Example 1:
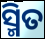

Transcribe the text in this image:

ସ୍ମିତ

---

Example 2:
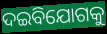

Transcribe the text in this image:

ଦଇବିଯୋଗକୁ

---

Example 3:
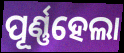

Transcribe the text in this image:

ପୂର୍ଣ୍ଣହେଲା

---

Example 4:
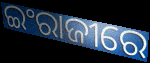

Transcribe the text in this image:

ଇଂରାଜୀରେ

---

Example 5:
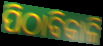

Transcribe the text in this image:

ପିଠାବିକାଳି